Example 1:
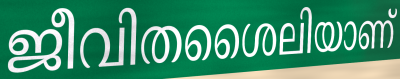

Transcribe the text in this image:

ജീവിതശൈലിയാണ്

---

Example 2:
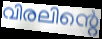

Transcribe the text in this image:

വിരലിന്റെ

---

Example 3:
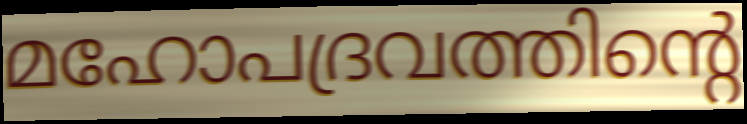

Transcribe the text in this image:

മഹോപദ്രവത്തിന്റെ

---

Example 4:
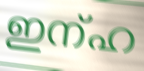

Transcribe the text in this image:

ഇന്ഹ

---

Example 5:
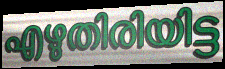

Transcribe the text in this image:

എഴുതിരിയിട്ട